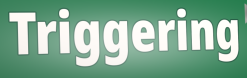
Triggering